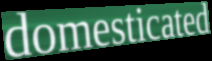
domesticated